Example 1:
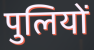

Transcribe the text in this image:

पुलियों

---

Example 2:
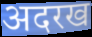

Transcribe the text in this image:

अदरख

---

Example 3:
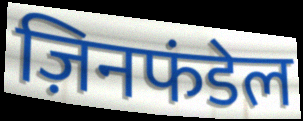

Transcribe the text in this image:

ज़िनफंडेल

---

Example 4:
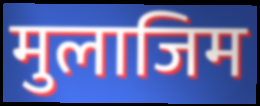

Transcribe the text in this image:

मुलाजिम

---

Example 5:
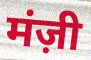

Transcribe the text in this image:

मंज़ी